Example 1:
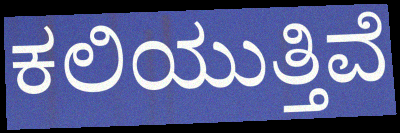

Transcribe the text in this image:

ಕಲಿಯುತ್ತಿವೆ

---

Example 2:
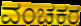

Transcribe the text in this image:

ವಂಚಕರ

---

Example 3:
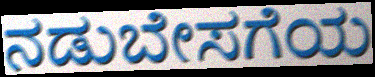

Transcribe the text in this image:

ನಡುಬೇಸಗೆಯ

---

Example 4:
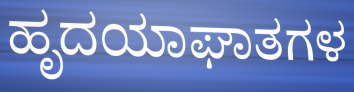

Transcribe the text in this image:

ಹೃದಯಾಘಾತಗಳ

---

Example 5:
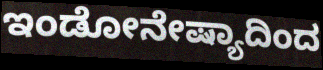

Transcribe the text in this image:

ಇಂಡೋನೇಷ್ಯಾದಿಂದ